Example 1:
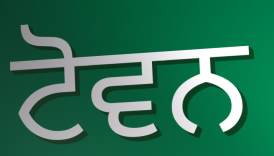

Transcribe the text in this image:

ਟੋਵਨ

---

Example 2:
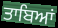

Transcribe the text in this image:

ਤਾਬਿਆਂ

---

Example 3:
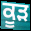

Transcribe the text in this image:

ਕੂੜ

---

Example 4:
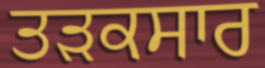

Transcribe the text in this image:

ਤੜਕਸਾਰ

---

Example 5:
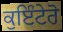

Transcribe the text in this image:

ਕੁਇੰਟੇਰੋ